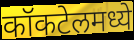
कॉकटेलमध्ये